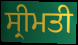
ਸ੍ਰੀਮਤੀ